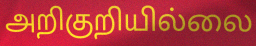
அறிகுறியில்லை